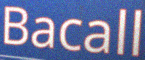
Bacall